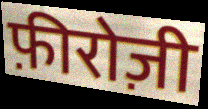
फ़ीरोज़ी